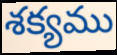
శక్యము